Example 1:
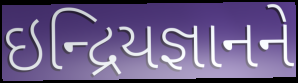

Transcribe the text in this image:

ઇન્દ્રિયજ્ઞાનને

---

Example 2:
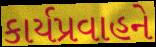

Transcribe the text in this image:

કાર્યપ્રવાહને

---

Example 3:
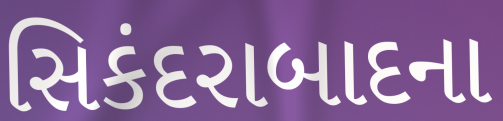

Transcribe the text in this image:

સિકંદરાબાદના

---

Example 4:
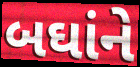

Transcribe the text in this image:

બઘાંને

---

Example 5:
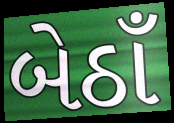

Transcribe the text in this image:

બેઠાઁ